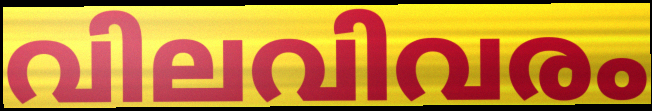
വിലവിവരം